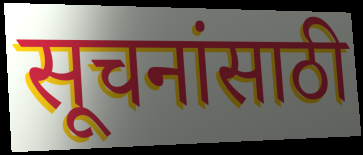
सूचनांसाठी